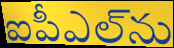
ఐపీఎల్‌ను